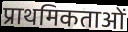
प्राथमिकताओं